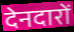
देनदारों